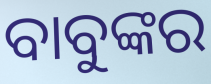
ବାବୁଙ୍କର